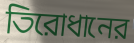
তিরোধানের